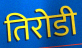
तिरोडी